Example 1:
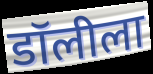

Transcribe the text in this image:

डॉलीला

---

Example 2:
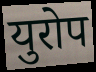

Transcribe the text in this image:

युरोप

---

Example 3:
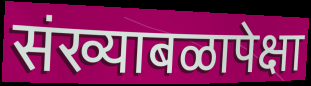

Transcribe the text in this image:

संख्याबळापेक्षा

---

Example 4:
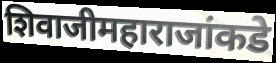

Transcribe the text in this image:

शिवाजीमहाराजांकडे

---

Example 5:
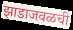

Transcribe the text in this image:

झाडाजवळची